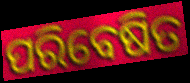
ପରିବେଷିତ